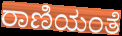
ರಾಣಿಯಂತೆ